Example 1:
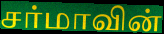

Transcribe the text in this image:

சர்மாவின்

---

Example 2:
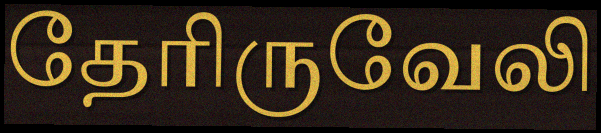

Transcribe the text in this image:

தேரிருவேலி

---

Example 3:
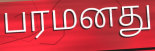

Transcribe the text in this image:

பரமனது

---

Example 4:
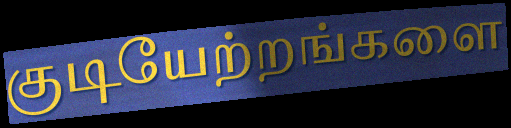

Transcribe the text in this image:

குடியேற்றங்களை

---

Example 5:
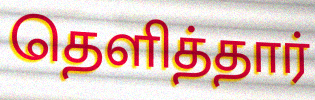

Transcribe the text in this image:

தெளித்தார்